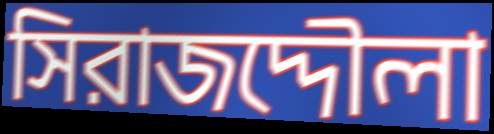
সিরাজদ্দৌলা